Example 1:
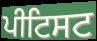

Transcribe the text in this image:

ਪੀਟਿਸਟ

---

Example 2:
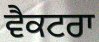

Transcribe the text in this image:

ਵੈਕਟਰਾ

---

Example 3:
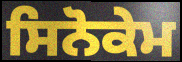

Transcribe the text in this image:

ਸਿਨੋਕੇਮ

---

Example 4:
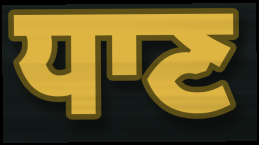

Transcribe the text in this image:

ਧਾਣ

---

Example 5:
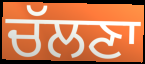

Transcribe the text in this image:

ਚੱਲਣਾ